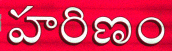
హరిణం